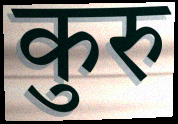
कुरु